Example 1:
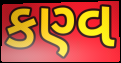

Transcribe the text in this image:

કણ્વ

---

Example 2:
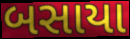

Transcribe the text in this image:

બસાયા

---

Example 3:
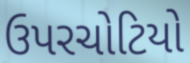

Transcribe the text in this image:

ઉપરચોટિયો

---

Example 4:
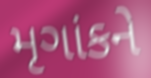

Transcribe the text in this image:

મૃગાંકને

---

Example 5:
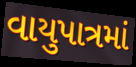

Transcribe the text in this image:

વાયુપાત્રમાં